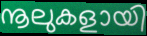
നൂലുകളായി